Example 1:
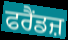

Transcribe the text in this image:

ਫਰੈਂਡਜ਼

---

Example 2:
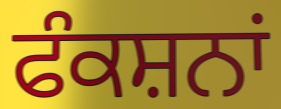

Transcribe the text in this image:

ਫੰਕਸ਼ਨਾਂ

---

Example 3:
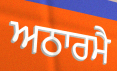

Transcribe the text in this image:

ਅਠਾਰਮੈ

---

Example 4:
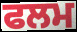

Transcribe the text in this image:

ਫਲਮ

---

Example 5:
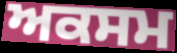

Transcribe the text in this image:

ਅਕਸਮ